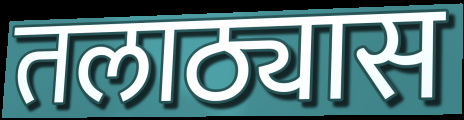
तलाठ्यास